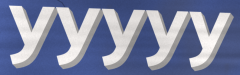
yyyyy